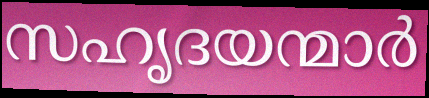
സഹൃദയന്മാർ